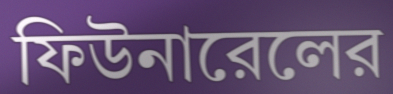
ফিউনারেলের